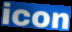
icon